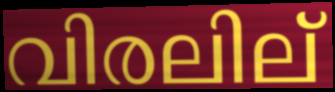
വിരലില്